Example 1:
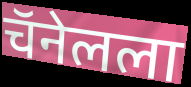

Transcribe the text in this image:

चॅनेलला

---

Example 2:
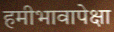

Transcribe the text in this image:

हमीभावापेक्षा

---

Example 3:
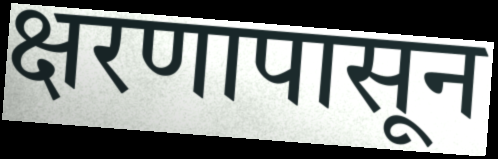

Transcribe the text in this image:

क्षरणापासून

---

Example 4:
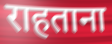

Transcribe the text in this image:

राहताना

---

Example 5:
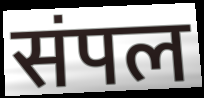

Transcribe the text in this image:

संपल